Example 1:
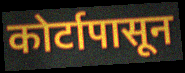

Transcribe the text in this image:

कोर्टापासून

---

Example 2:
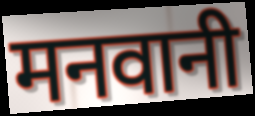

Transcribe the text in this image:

मनवानी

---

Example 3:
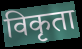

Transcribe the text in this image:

विकृता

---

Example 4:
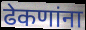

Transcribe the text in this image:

ढेकणांना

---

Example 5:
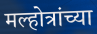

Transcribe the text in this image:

मल्होत्रांच्या